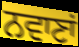
ਨਵਾਣਾਂ